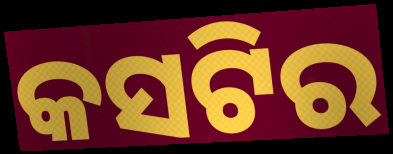
କସଟିର